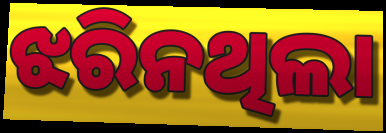
ଝରିନଥିଲା